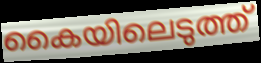
കൈയിലെടുത്ത്